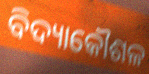
ବିଦ୍ୟାକୌଶଳ